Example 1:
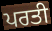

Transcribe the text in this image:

ਪਰਤੀ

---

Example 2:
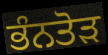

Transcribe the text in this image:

ਭੰਨਤੋੜ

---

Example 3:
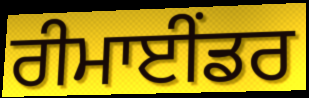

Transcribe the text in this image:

ਰੀਮਾਈਂਡਰ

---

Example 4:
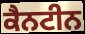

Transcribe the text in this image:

ਕੈਨਟੀਨ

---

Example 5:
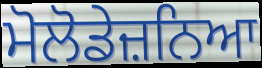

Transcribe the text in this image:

ਮੋਲੋਡੇਜ਼ਨਿਆ